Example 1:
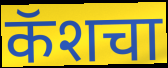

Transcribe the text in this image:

कॅशचा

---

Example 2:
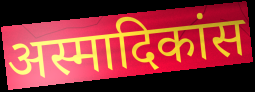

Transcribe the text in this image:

अस्मादिकांस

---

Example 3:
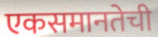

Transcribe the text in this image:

एकसमानतेची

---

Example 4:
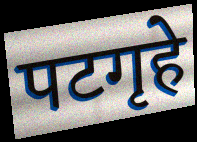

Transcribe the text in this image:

पटगृहे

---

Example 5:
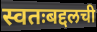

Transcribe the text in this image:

स्वतःबद्दलची